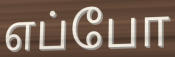
எப்போ